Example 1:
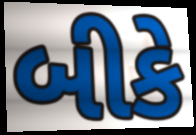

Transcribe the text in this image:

બીકે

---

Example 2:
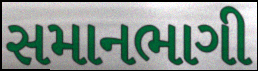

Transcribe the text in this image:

સમાનભાગી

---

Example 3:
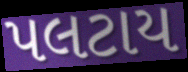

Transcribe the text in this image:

પલટાય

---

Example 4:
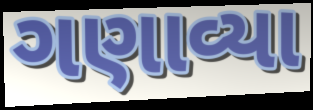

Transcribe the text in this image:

ગણાવ્યા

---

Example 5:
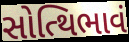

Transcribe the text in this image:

સોત્થિભાવં